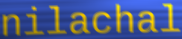
nilachal